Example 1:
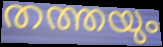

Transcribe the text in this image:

തത്തയും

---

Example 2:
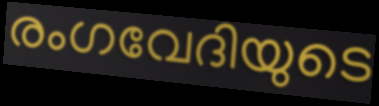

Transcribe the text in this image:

രംഗവേദിയുടെ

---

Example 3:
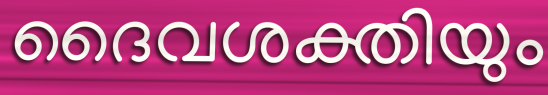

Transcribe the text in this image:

ദൈവശക്തിയും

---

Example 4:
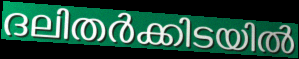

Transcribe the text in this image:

ദലിതർക്കിടയിൽ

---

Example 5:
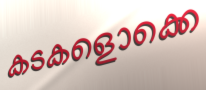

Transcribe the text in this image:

കടകളൊക്കെ